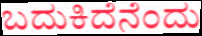
ಬದುಕಿದೆನೆಂದು